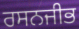
ਰਸਨਜੀਭ